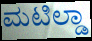
ಮಟಿಲ್ಡಾ